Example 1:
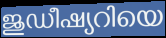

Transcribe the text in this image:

ജുഡീഷ്യറിയെ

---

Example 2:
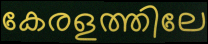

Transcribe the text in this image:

കേരളത്തിലേ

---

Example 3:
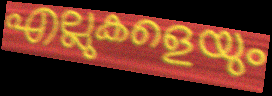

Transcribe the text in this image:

എല്ലുകളെയും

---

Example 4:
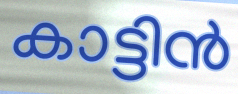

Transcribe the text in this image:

കാട്ടിൻ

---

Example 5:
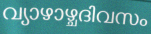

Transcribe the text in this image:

വ്യാഴാഴ്ചദിവസം